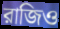
রাজিও